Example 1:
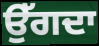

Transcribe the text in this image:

ਉੱਗਦਾ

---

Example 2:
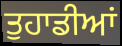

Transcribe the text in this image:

ਤੁਹਾਡੀਆਂ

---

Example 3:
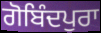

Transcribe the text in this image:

ਗੋਬਿੰਦਪੁਰਾ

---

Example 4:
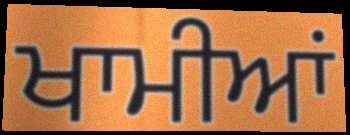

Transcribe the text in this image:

ਖਾਮੀਆਂ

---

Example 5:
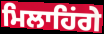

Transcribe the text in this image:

ਮਿਲਾਹਿਂਗੇ